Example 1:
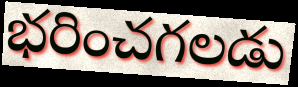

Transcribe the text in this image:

భరించగలడు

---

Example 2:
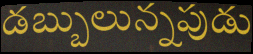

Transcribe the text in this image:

డబ్బులున్నపుడు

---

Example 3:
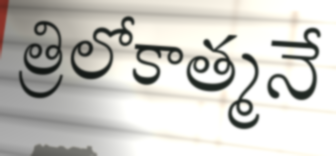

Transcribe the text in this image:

త్రిలోకాత్మనే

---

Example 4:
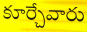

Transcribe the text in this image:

కూర్చేవారు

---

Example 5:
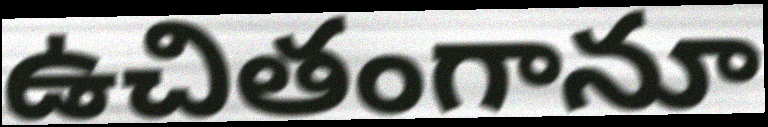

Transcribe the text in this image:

ఉచితంగానూ